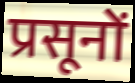
प्रसूनों